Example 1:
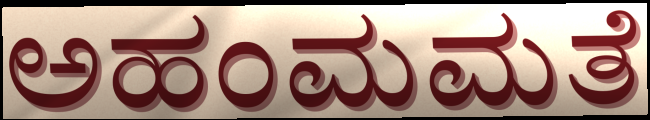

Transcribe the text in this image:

ಅಹಂಮಮತೆ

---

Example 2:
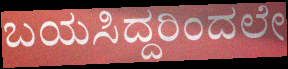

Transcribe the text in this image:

ಬಯಸಿದ್ದರಿಂದಲೇ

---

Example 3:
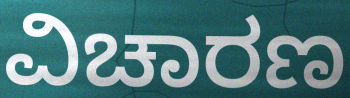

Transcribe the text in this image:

ವಿಚಾರಣ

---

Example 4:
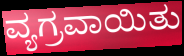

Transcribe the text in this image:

ವ್ಯಗ್ರವಾಯಿತು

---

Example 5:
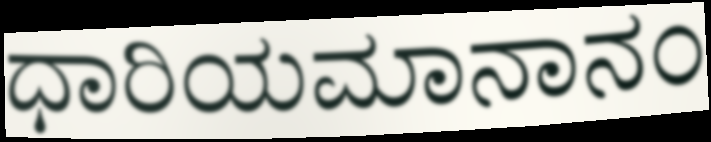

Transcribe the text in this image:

ಧಾರಿಯಮಾನಾನಂ